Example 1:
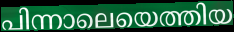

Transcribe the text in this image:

പിന്നാലെയെത്തിയ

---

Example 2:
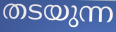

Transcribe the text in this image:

തടയുന്ന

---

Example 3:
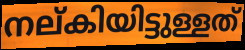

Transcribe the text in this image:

നല്കിയിട്ടുള്ളത്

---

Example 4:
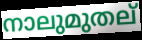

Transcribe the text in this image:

നാലുമുതല്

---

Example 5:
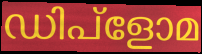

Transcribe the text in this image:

ഡിപ്ളോമ